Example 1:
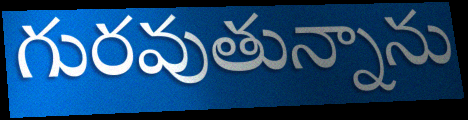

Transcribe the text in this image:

గురవుతున్నాను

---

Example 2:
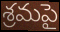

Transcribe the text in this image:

శ్రమపై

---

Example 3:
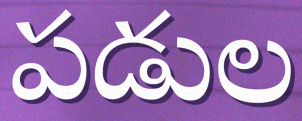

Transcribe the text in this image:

పడుల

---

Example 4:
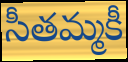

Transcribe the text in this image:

సీతమ్మకీ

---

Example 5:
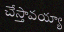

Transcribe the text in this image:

చేస్తావయ్యా